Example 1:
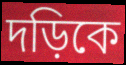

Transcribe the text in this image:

দড়িকে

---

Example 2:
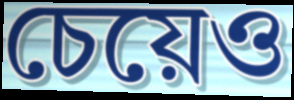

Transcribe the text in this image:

চেয়েও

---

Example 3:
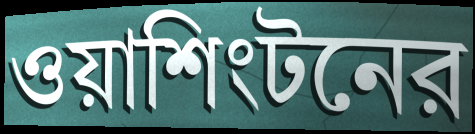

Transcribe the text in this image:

ওয়াশিংটনের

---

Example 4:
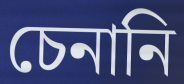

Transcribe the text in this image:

চেনানি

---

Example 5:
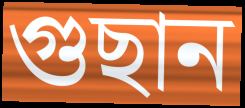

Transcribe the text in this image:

গুছান